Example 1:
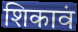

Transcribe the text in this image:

शिकावं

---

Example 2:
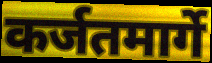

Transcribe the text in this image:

कर्जतमार्गे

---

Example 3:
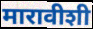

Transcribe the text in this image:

मारावीशी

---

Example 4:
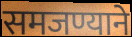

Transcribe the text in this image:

समजण्याने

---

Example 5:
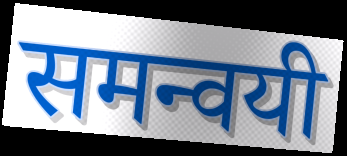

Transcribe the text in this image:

समन्वयी